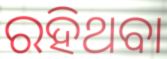
ରହିଥବା